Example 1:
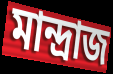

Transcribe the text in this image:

মান্দ্রাজ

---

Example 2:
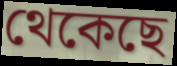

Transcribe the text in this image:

থেকেছে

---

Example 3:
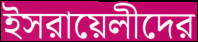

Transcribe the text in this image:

ইসরায়েলীদের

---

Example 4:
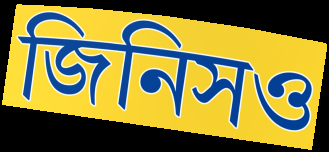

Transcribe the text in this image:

জিনিসও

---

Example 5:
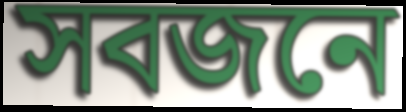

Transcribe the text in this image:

সবজনে